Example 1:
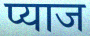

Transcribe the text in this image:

प्याज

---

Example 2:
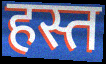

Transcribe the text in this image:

हस्त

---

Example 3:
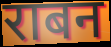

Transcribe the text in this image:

राबन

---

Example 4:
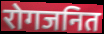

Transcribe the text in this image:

रोगजनित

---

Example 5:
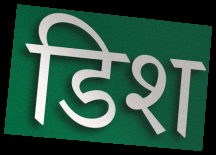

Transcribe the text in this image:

डिश